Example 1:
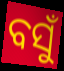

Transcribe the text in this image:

ବସୁଁ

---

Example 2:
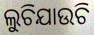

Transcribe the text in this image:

ଲୁଚିଯାଉଚି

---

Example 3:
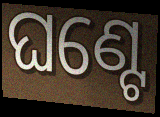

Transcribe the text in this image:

ଘଣ୍ଟେ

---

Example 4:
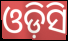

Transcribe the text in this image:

ଓଡ଼ିସି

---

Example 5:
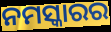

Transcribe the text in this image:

ନମସ୍କାରର